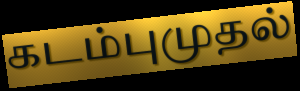
கடம்புமுதல்